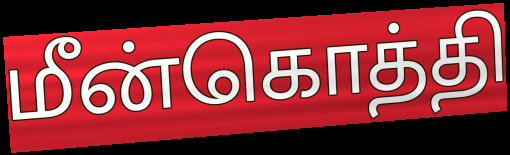
மீன்கொத்தி